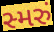
સ્મરું